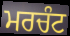
ਮਰਚੰਟ